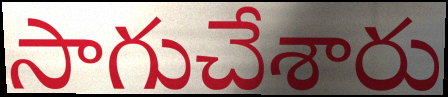
సాగుచేశారు